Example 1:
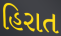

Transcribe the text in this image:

હિરાત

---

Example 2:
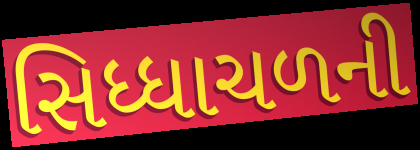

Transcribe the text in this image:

સિધ્ધાચળની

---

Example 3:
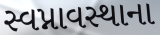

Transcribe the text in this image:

સ્વપ્નાવસ્થાના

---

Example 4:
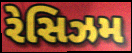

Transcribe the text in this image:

રેસિઝમ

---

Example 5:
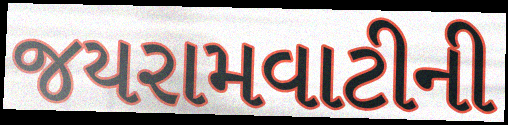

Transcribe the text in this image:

જયરામવાટીની